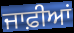
ਜਾਫ਼ੀਆਂ